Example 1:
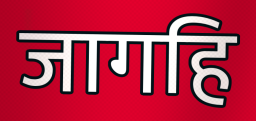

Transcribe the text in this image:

जागहि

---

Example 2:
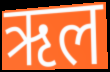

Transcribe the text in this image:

ऋल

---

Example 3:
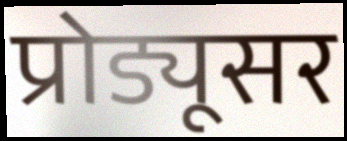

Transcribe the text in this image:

प्रोड्यूसर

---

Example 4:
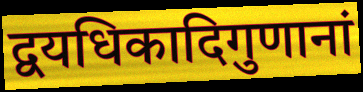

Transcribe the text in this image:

द्वयधिकादिगुणानां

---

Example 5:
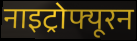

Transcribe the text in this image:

नाइट्रोफ्यूरन